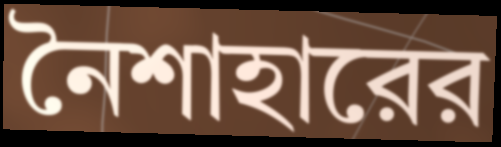
নৈশাহারের